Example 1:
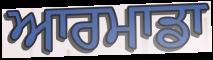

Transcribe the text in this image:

ਆਰਮਾਡਾ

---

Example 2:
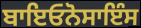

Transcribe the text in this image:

ਬਾਇਓਨੋਸਾਇੰਸ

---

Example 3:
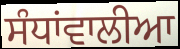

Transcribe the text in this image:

ਸੰਧਾਂਵਾਲੀਆ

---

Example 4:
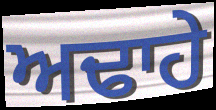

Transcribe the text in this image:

ਅਢਾਹੇ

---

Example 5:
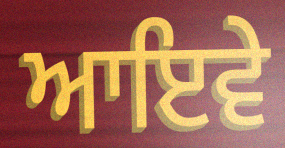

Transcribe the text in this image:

ਆਇਵੇ